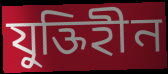
যুক্তিহীন